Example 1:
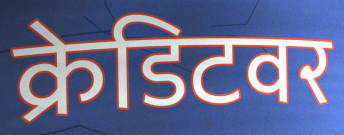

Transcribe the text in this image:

क्रेडिटवर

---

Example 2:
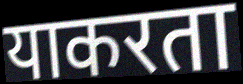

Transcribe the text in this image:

याकरता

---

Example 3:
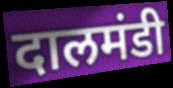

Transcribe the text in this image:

दालमंडी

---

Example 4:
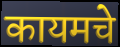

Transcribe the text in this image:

कायमचे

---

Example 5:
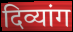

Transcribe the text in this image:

दिव्यांग